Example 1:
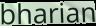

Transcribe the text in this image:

bharian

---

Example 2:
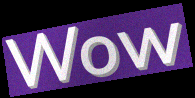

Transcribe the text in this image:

Wow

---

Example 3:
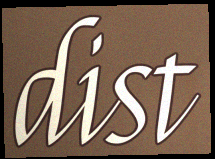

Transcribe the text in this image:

dist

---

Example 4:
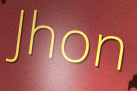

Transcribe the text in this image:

Jhon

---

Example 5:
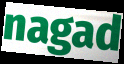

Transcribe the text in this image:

nagad